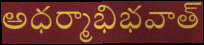
అధర్మాభిభవాత్